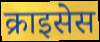
क्राइसेस